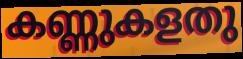
കണ്ണുകളതു